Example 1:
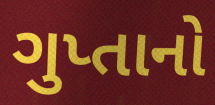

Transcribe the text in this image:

ગુપ્તાનો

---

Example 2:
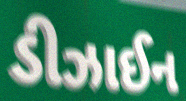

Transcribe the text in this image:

ડીઝાઈન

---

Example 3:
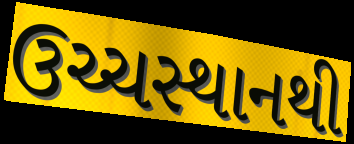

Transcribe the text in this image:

ઉચ્ચસ્થાનથી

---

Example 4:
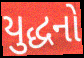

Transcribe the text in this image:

યુદ્ધનો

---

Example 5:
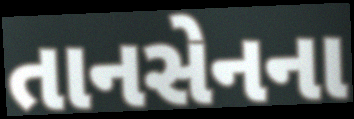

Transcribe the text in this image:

તાનસેનના